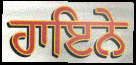
ਹਾਇਨੇ